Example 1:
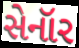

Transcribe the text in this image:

સેનૉર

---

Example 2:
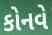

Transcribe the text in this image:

કોનવે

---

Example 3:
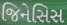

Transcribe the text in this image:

જિનેસિસ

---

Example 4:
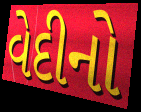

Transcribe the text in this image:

વેદીનો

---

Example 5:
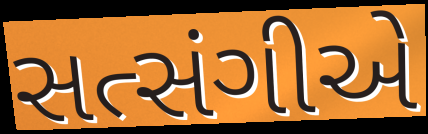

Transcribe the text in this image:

સત્સંગીએ